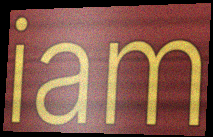
iam